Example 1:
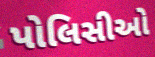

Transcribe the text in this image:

પોલિસીઓ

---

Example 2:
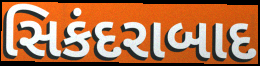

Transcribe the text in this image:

સિકંદરાબાદ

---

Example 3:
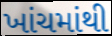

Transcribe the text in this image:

ખાંચમાંથી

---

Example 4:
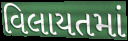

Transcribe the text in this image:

વિલાયતમાં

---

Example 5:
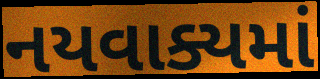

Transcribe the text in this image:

નયવાક્યમાં